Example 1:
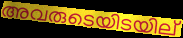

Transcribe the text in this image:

അവരുടെയിടയില്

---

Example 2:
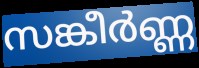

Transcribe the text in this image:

സങ്കീർണ്ണ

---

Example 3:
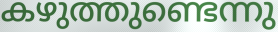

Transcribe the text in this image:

കഴുത്തുണ്ടെന്നു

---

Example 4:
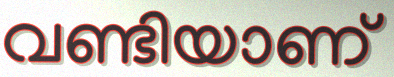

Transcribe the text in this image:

വണ്ടിയാണ്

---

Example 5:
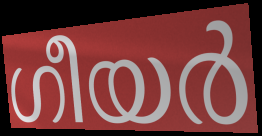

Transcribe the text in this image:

ഗീയർ